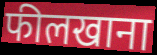
फीलखाना